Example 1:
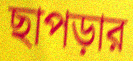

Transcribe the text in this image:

ছাপড়ার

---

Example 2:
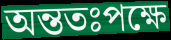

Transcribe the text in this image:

অন্ততঃপক্ষে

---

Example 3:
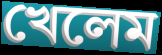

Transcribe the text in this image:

খেলেম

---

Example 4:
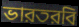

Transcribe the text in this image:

ভারতরবি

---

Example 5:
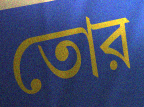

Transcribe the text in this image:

তোর